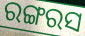
ରଙ୍ଗରସ